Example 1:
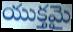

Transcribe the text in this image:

యుక్తమై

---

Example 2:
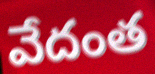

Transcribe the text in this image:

వేదంత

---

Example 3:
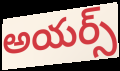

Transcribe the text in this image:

అయర్స్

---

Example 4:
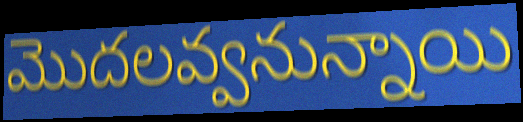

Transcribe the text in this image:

మొదలవ్వనున్నాయి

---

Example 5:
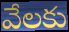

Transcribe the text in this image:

వేలకు